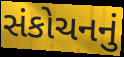
સંકોચનનું